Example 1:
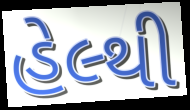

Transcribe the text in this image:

હેલ્થી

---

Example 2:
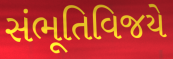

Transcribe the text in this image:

સંભૂતિવિજયે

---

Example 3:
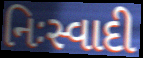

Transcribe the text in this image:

નિઃસ્વાદી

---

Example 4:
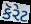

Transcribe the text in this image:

કૅરેટ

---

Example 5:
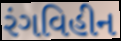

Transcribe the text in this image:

રંગવિહીન